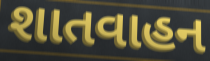
શાતવાહન